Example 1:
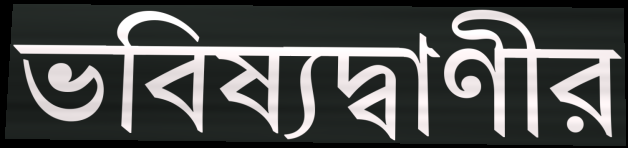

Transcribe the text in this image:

ভবিষ্যদ্বাণীর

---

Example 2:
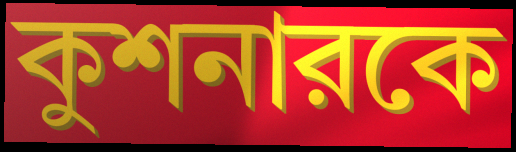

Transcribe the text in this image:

কুশনারকে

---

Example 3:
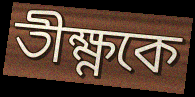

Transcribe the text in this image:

তীক্ষ্ণকে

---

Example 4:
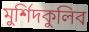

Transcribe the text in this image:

মুর্শিদকুলিব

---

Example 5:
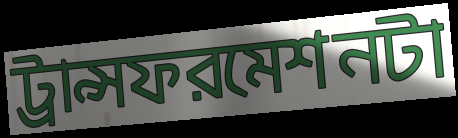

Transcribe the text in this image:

ট্রান্সফরমেশনটা